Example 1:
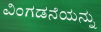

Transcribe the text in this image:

ವಿಂಗಡನೆಯನ್ನು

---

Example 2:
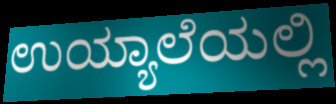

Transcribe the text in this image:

ಉಯ್ಯಾಲೆಯಲ್ಲಿ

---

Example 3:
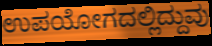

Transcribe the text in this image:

ಉಪಯೋಗದಲ್ಲಿದ್ದುವು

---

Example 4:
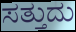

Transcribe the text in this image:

ಸತ್ತುದು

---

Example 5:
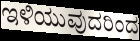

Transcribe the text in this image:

ಇಳಿಯುವುದರಿಂದ